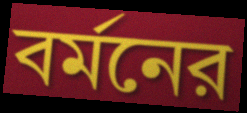
বর্মনের